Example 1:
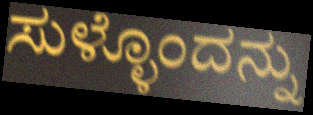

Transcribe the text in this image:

ಸುಳ್ಳೊಂದನ್ನು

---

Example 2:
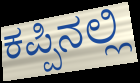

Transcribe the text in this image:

ಕಪ್ಪಿನಲ್ಲಿ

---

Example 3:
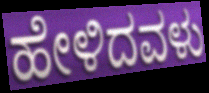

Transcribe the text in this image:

ಹೇಳಿದವಳು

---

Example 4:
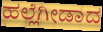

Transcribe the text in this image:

ಹಲ್ಲೆಗೀಡಾದ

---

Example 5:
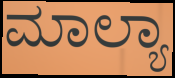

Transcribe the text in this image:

ಮಾಲ್ಯಾ